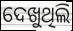
ଦେଖୁଥିଲି